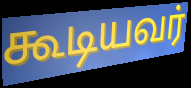
கூடியவர்